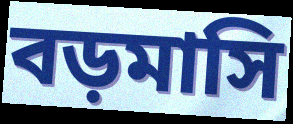
বড়মাসি